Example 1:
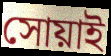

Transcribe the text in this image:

সোয়াই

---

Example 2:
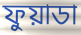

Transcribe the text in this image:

ফুয়াডা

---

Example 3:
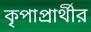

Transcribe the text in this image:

কৃপাপ্রার্থীর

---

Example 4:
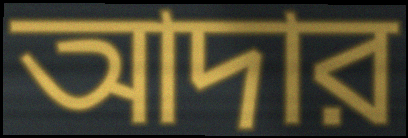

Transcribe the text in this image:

আদার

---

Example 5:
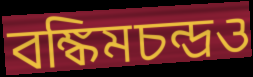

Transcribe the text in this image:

বঙ্কিমচন্দ্রও